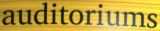
auditoriums